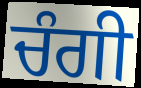
ਚੰਗੀ